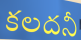
కలదనీ